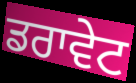
ਡਰਾਵੇਟ